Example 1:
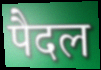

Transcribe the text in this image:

पैदल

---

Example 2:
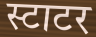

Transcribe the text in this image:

स्टाटर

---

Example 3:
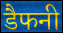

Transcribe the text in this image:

डैफनी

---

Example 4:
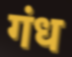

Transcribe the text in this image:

गंध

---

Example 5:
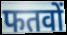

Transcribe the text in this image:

फतवों